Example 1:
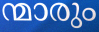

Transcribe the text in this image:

ന്മാരും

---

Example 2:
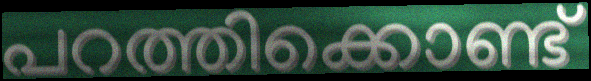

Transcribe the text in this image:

പറത്തിക്കൊണ്ട്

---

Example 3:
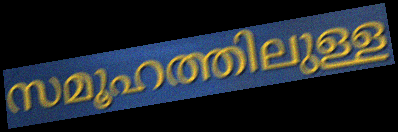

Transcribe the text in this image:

സമൂഹത്തിലുള്ള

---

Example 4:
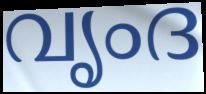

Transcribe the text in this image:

വൃംദ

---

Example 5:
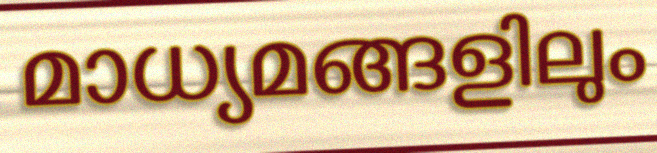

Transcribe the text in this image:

മാധ്യമങ്ങളിലും